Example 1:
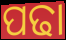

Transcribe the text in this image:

ପଢା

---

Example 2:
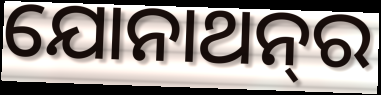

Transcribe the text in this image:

ଯୋନାଥନ୍‍ର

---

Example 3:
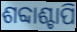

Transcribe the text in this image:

ଶବ୍ଦାଶ୍ଚାପି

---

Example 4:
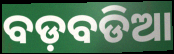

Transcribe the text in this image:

ବଡ଼ବଡିଆ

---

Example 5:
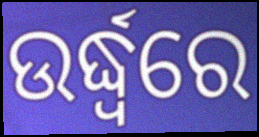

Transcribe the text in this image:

ଉର୍ଦ୍ଧ୍ଵରେ